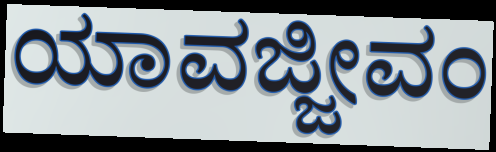
ಯಾವಜ್ಜೀವಂ